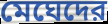
মেঘেদের